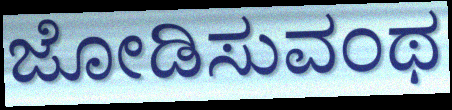
ಜೋಡಿಸುವಂಥ